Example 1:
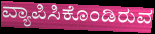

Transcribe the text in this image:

ವ್ಯಾಪಿಸಿಕೊಂಡಿರುವ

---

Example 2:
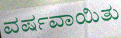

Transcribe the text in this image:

ವರ್ಷವಾಯಿತು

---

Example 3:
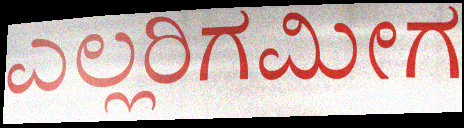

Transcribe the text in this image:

ಎಲ್ಲರಿಗಮೀಗ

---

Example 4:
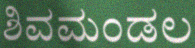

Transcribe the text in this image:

ಶಿವಮಂಡಲ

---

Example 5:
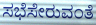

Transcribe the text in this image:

ಸಭೆಸೇರುವಂತೆ